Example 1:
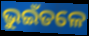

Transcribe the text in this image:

ଭୁଇଁତଳେ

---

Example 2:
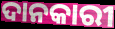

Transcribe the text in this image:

ଦାନକାରୀ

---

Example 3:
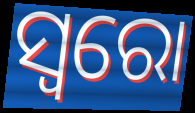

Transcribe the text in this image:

ସ୍ୱରୋ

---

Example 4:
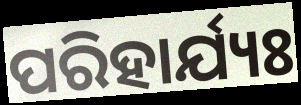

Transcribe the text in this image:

ପରିହାର୍ଯ୍ୟଃ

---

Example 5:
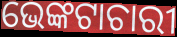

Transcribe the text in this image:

ଭେଙ୍କଟାଚାରୀ